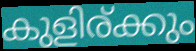
കുളിര്ക്കും